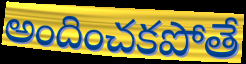
అందించకపోతే